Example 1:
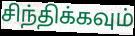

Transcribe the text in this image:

சிந்திக்கவும்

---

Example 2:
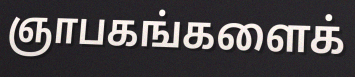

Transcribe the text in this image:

ஞாபகங்களைக்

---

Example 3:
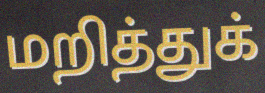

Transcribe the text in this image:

மறித்துக்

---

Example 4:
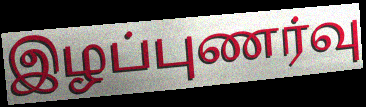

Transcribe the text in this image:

இழப்புணர்வு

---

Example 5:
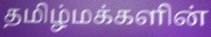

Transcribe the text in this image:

தமிழ்மக்களின்